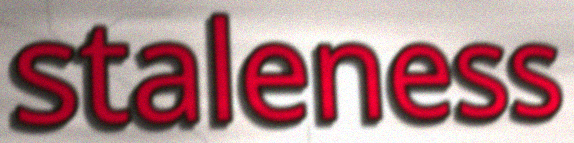
staleness